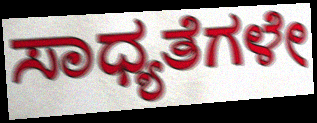
ಸಾಧ್ಯತೆಗಳೇ